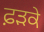
ਫ਼ਡ਼ਕੇ